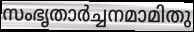
സംഭൃതാർച്ചനമാമിതു